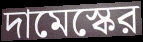
দামেস্কের